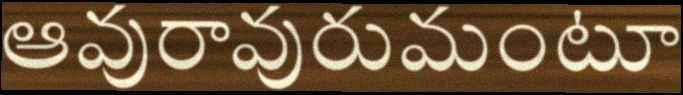
ఆవురావురుమంటూ